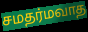
சமதர்மவாத